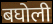
बघोली